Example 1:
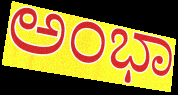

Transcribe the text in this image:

ಅಂಭಾ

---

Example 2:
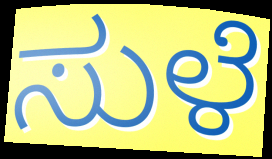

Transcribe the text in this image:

ಸುಳೆ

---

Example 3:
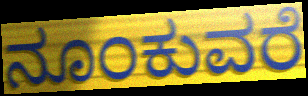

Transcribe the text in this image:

ನೂಂಕುವರೆ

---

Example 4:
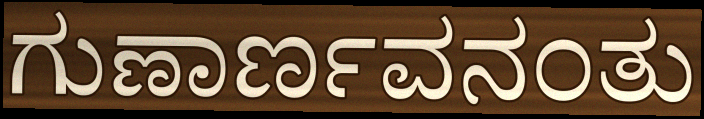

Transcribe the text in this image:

ಗುಣಾರ್ಣವನಂತು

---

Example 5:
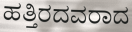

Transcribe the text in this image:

ಹತ್ತಿರದವರಾದ